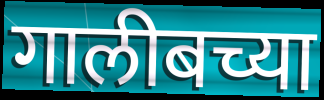
गालीबच्या